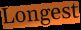
Longest